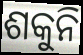
ଶକୁନି